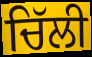
ਚਿੱਲੀ